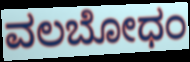
ವಲಬೋಧಂ